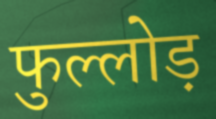
फुल्लोड़